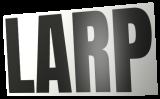
LARP